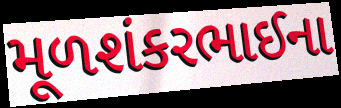
મૂળશંકરભાઈના